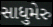
સાધુમેરુ